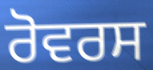
ਰੋਵਰਸ